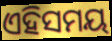
ଏହିସମୟ